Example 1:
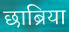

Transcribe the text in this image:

छाब्रिया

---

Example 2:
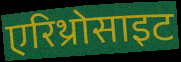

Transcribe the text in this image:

एरिथ्रोसाइट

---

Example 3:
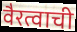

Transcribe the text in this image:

वैरत्वाची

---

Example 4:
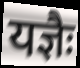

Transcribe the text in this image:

यज्ञैः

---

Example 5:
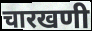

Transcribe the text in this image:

चारखणी